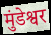
मुंडेश्वर